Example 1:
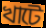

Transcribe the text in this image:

খাটে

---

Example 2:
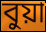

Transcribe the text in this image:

বুয়া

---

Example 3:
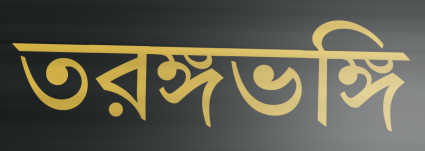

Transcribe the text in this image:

তরঙ্গভঙ্গি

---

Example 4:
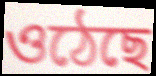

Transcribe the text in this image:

ওঠেছে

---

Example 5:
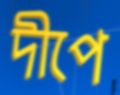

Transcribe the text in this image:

দীপে